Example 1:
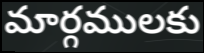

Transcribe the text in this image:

మార్గములకు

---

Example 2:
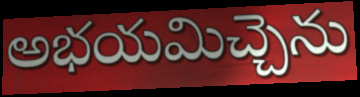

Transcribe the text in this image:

అభయమిచ్చెను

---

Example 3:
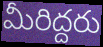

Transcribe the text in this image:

మీరిద్దరు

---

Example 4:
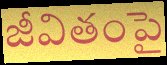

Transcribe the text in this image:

జీవితంపై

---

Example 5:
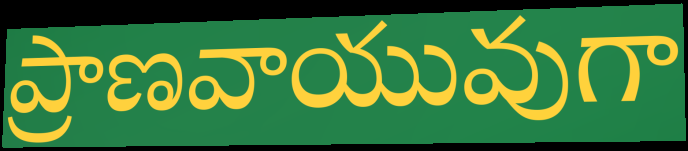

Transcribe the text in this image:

ప్రాణవాయువుగా